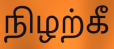
நிழற்கீ